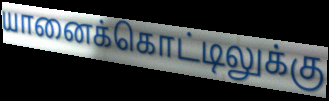
யானைக்கொட்டிலுக்கு